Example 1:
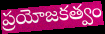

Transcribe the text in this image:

ప్రయోజకత్వం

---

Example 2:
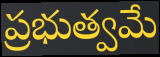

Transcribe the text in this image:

ప్రభుత్వమే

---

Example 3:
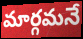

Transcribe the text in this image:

మార్గమనే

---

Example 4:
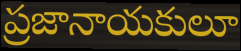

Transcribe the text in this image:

ప్రజానాయకులూ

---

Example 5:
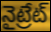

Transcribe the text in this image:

నైట్రేట్